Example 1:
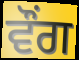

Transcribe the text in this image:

ਵੌਂਗ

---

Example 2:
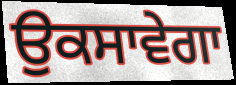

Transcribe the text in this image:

ਉਕਸਾਵੇਗਾ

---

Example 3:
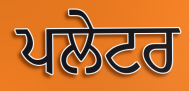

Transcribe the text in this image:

ਪਲੇਟਰ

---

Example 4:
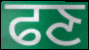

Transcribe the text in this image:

ਫਣ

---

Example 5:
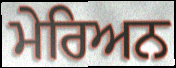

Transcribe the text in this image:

ਮੇਰਿਅਨ